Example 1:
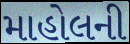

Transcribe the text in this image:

માહોલની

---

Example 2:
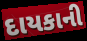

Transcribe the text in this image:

દાયકાની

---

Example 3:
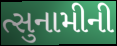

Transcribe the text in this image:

ત્સુનામીની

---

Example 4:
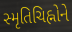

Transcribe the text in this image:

સ્મૃતિચિહ્નોને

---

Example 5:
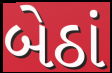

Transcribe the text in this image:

બેઠાં